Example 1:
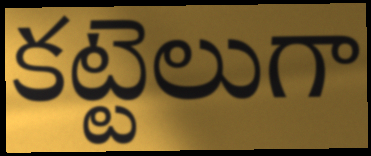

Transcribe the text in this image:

కట్టెలుగా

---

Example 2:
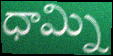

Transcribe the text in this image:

ధామ్ని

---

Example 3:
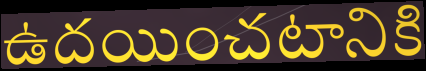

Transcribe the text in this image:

ఉదయించటానికి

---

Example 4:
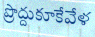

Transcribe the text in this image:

ప్రొద్దుకూకేవేళ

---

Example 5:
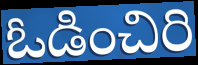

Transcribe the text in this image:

ఓడించిరి